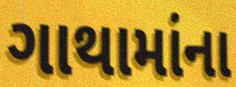
ગાથામાંના